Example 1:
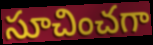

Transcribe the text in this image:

సూచించగా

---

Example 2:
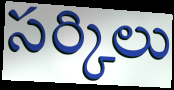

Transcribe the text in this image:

సర్కిలు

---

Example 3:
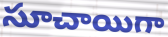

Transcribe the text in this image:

సూచాయిగా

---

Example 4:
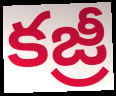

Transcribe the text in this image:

కజ్రీ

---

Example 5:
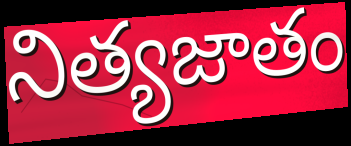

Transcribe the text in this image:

నిత్యజాతం